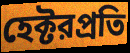
হেক্টরপ্রতি